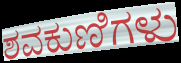
ಶವಕುಣಿಗಳು